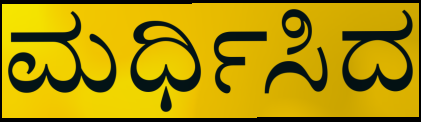
ಮರ್ಧಿಸಿದ